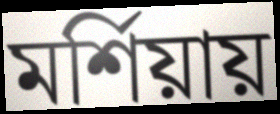
মর্শিয়ায়